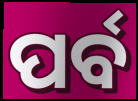
ପର୍ବ